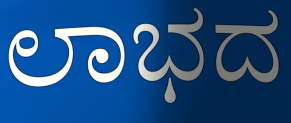
ಲಾಭದ